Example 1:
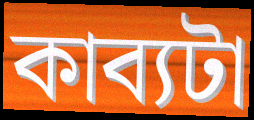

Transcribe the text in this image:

কাব্যটা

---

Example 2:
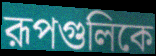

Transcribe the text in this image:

রূপগুলিকে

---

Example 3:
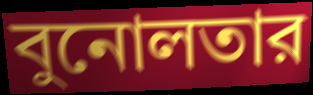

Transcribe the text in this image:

বুনোলতার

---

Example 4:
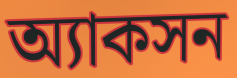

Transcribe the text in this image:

অ্যাকসন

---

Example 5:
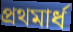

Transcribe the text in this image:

প্রথমার্ধ